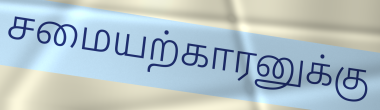
சமையற்காரனுக்கு